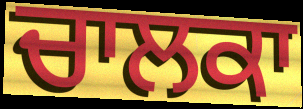
ਚਾਲਕਾ